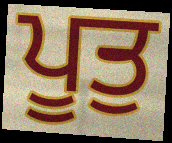
ਪੂਤੁ